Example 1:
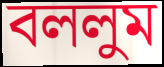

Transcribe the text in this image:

বললুম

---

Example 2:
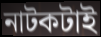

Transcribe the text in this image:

নাটকটাই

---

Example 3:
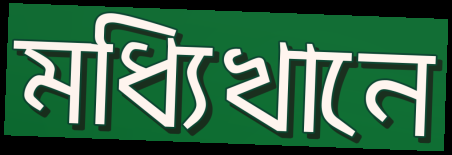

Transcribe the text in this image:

মধ্যিখানে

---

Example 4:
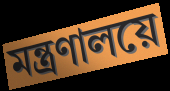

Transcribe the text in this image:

মন্ত্রণালয়ে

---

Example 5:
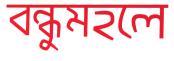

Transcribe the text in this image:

বন্ধুমহলে